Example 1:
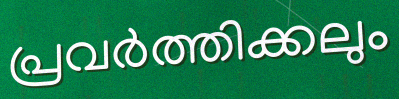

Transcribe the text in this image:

പ്രവർത്തിക്കലും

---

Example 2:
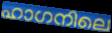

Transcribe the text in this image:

ഹാഗനിലെ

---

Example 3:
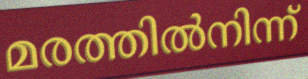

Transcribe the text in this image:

മരത്തിൽനിന്ന്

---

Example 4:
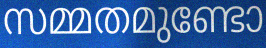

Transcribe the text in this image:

സമ്മതമുണ്ടോ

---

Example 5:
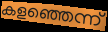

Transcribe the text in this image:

കളഞ്ഞെന്ന്